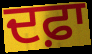
ਦਫ਼ਾ